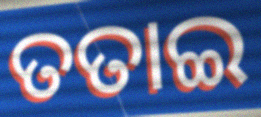
ତତାଇ